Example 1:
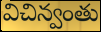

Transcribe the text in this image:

విచిన్వంతు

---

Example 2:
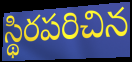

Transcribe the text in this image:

స్థిరపరిచిన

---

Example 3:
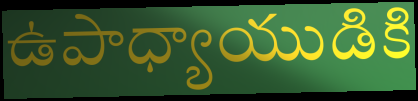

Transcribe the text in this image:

ఉపాధ్యాయుడికి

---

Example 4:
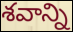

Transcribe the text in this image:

శవాన్ని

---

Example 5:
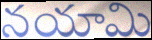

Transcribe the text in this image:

నయామి